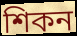
শিকন